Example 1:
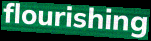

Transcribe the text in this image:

flourishing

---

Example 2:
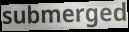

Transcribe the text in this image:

submerged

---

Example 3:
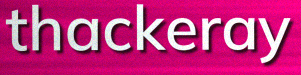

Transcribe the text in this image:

thackeray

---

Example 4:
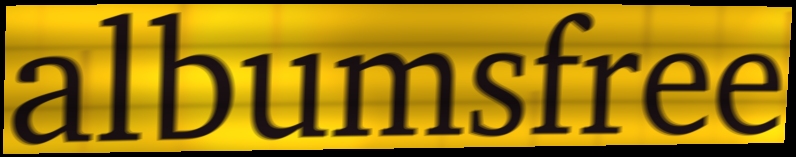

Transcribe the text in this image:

albumsfree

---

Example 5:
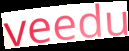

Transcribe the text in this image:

veedu